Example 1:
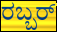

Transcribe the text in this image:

ರಬ್ಬರ್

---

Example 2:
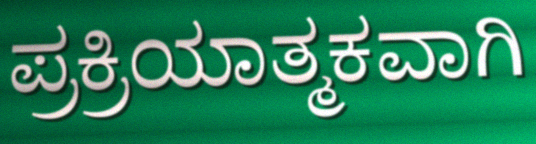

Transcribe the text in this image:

ಪ್ರಕ್ರಿಯಾತ್ಮಕವಾಗಿ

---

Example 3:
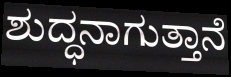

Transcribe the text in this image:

ಶುದ್ಧನಾಗುತ್ತಾನೆ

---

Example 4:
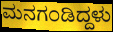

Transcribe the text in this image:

ಮನಗಂಡಿದ್ದಳು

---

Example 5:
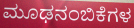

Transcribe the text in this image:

ಮೂಢನಂಬಿಕೆಗಳ